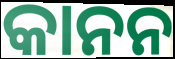
କାନନ